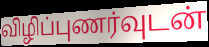
விழிப்புணர்வுடன்